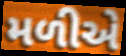
મળીએ